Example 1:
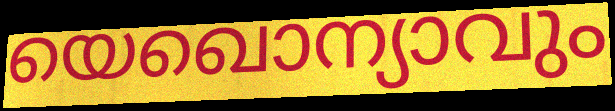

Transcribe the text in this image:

യെഖൊന്യാവും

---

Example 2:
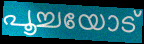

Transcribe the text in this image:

പൂച്ചയോട്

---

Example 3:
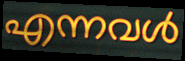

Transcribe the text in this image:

എന്നവൾ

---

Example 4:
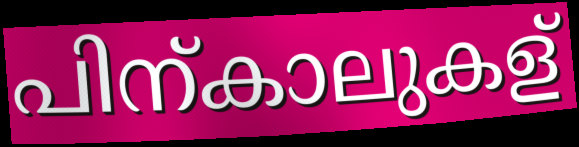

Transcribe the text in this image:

പിന്കാലുകള്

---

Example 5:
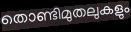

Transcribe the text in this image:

തൊണ്ടിമുതലുകളും